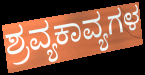
ಶ್ರವ್ಯಕಾವ್ಯಗಳ